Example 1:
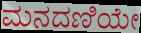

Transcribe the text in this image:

ಮನದಣಿಯೇ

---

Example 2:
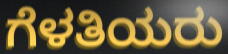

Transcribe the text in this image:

ಗೆಳತಿಯರು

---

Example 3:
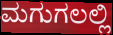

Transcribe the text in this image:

ಮಗುಗಲಲ್ಲಿ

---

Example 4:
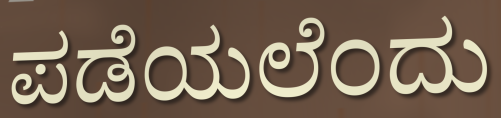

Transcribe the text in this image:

ಪಡೆಯಲೆಂದು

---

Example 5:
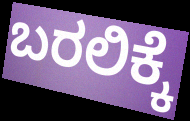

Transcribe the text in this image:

ಬರಲಿಕ್ಕೆ